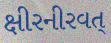
ક્ષીરનીરવત્